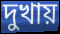
দুখায়